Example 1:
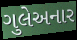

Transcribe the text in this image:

ગુલેઅનાર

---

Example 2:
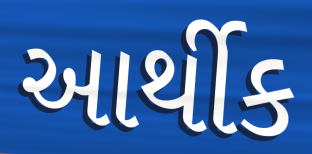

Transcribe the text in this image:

આર્થીક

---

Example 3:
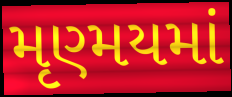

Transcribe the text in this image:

મૃણ્મયમાં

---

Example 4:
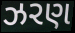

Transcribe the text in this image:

ઝરણ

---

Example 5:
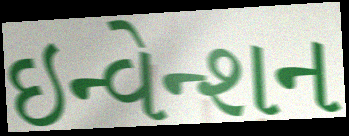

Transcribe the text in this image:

ઇન્વેન્શન